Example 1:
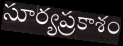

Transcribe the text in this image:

సూర్యప్రకాశం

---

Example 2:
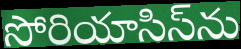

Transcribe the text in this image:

సోరియాసిస్‌ను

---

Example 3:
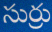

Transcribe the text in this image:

సుర్రు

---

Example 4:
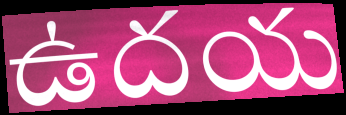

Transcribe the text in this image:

ఉదయ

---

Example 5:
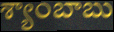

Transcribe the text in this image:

శ్యాంబాబు